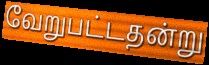
வேறுபட்டதன்று